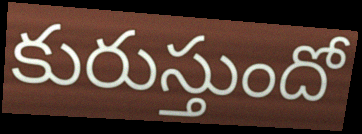
కురుస్తుందో